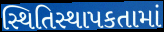
સ્થિતિસ્થાપકતામાં